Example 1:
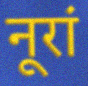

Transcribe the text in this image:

नूरां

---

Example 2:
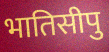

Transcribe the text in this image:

भातिसीपु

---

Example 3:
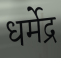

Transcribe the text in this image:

धर्मेद्र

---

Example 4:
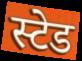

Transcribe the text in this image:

स्टेड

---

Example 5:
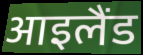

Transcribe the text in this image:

आइलैंड